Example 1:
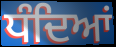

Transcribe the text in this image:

ਧੰਦਿਆਂ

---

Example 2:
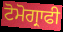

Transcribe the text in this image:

ਟੋਮੋਗ੍ਰਾਫੀ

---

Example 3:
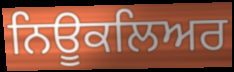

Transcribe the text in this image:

ਨਿਊਕਲਿਅਰ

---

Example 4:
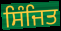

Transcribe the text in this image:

ਸਿੰਜਿਤ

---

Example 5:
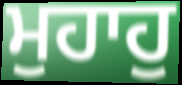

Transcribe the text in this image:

ਮੁਹਾਹੁ